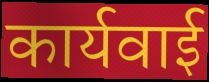
कार्यवाई